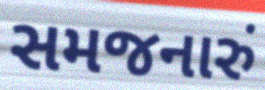
સમજનારું